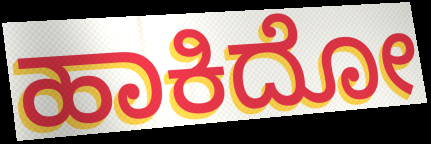
ಹಾಕಿದೋ